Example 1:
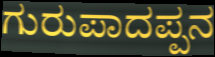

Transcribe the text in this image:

ಗುರುಪಾದಪ್ಪನ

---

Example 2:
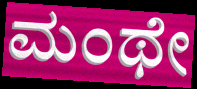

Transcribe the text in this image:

ಮಂಥೇ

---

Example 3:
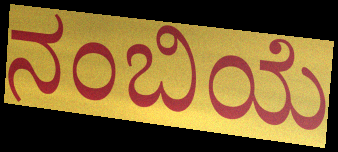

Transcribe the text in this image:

ನಂಬಿಯೆ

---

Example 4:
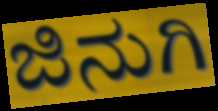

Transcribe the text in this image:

ಜಿನುಗಿ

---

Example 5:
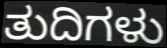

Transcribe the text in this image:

ತುದಿಗಳು